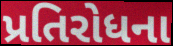
પ્રતિરોધના